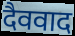
दैववाद